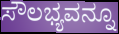
ಸೌಲಭ್ಯವನ್ನೂ